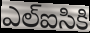
ఎల్ఐసికి